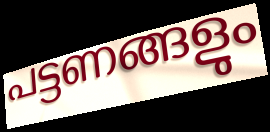
പട്ടണങ്ങളും